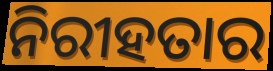
ନିରୀହତାର